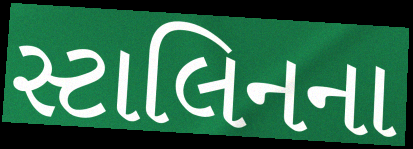
સ્ટાલિનના